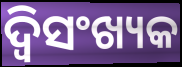
ଦ୍ୱିସଂଖ୍ୟକ